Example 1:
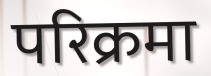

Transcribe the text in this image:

परिक्रमा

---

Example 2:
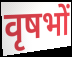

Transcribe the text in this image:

वृषभों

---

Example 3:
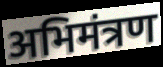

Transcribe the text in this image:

अभिमंत्रण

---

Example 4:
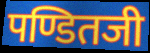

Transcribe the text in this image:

पण्डितजी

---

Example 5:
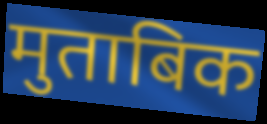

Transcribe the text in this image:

मुताबिक